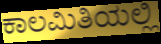
ಕಾಲಮಿತಿಯಲ್ಲಿ